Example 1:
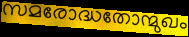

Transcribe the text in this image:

സമരോദ്ധതോന്മുഖം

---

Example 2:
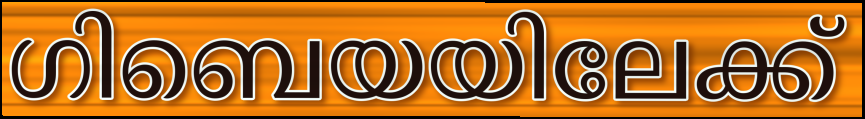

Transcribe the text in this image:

ഗിബെയയിലേക്ക്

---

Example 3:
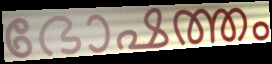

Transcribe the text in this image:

ഭോഷത്തം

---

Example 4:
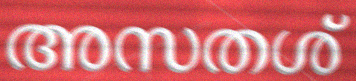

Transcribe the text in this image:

അസതശ്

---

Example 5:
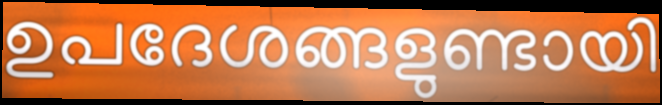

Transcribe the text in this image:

ഉപദേശങ്ങളുണ്ടായി